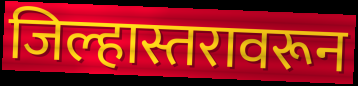
जिल्हास्तरावरून